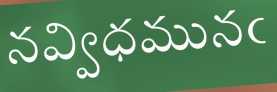
నవ్విధమునఁ